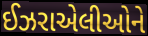
ઈઝરાએલીઓને